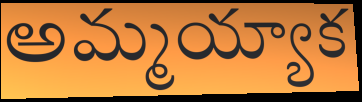
అమ్మయ్యాక